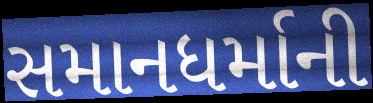
સમાનધર્માની